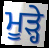
ਮੂੜ੍ਹੇ